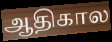
ஆதிகால